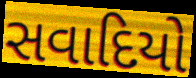
સવાદિયો